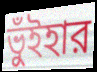
ভুঁইহার